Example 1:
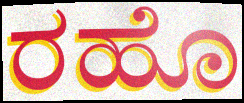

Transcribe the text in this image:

ರಹೊ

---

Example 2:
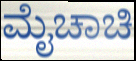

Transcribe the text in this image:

ಮೈಚಾಚಿ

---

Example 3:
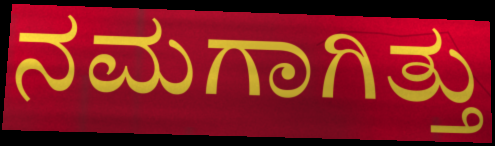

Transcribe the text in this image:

ನಮಗಾಗಿತ್ತು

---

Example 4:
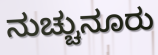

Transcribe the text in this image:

ನುಚ್ಚುನೂರು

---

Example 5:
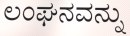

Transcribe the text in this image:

ಲಂಘನವನ್ನು